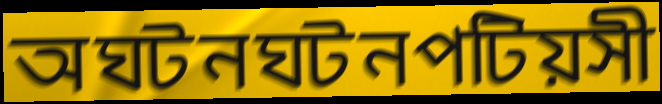
অঘটনঘটনপটিয়সী